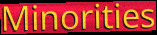
Minorities